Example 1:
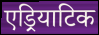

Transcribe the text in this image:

एड्रियाटिक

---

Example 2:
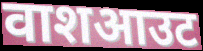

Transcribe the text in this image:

वाशआउट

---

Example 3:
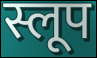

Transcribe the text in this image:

स्लूप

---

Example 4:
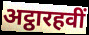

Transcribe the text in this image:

अट्ठारहवीं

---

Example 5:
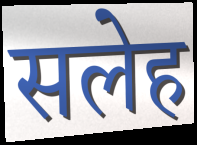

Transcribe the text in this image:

सलेह